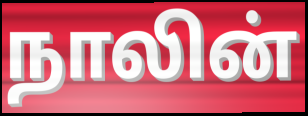
நாலின்